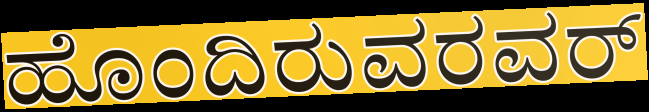
ಹೊಂದಿರುವರವರ್